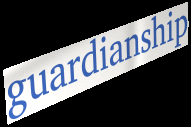
guardianship